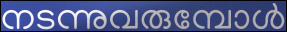
നടന്നുവരുമ്പോൾ